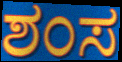
ಶಂಸ